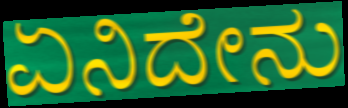
ಏನಿದೇನು